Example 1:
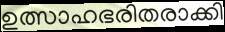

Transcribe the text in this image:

ഉത്സാഹഭരിതരാക്കി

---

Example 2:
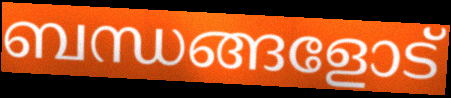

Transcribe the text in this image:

ബന്ധങ്ങളോട്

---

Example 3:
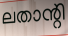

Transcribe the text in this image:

ലതാന്റി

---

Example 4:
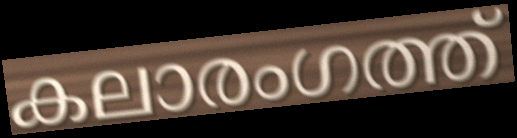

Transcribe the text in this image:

കലാരംഗത്ത്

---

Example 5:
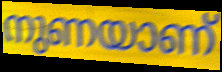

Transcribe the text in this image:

നുണയാണ്